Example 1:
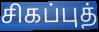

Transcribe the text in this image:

சிகப்புத்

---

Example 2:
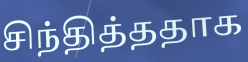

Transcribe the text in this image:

சிந்தித்ததாக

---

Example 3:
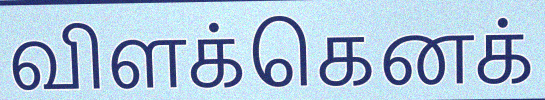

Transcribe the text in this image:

விளக்கெனக்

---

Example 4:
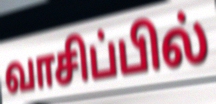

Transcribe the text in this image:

வாசிப்பில்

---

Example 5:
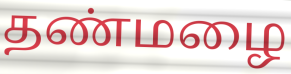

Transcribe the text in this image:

தண்மழை